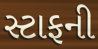
સ્ટાફની